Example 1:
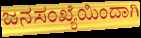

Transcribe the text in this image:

ಜನಸಂಖ್ಯೆಯಿಂದಾಗಿ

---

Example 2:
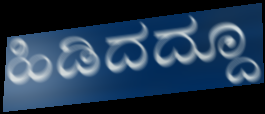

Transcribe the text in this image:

ಹಿಡಿದದ್ದೂ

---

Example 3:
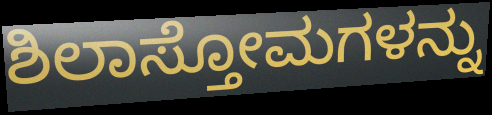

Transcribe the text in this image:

ಶಿಲಾಸ್ತೋಮಗಳನ್ನು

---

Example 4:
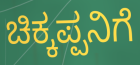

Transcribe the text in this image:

ಚಿಕ್ಕಪ್ಪನಿಗೆ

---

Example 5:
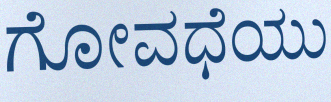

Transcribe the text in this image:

ಗೋವಧೆಯು